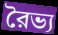
রৈভ্য